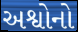
અશ્વોનો